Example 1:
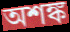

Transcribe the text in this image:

অশঙ্ক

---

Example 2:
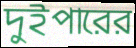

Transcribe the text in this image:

দুইপারের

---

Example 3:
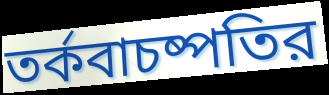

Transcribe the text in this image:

তর্কবাচষ্পতির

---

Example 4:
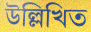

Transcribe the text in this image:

উল্লিখিত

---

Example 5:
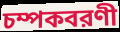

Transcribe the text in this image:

চম্পকবরণী